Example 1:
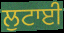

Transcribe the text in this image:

ਲੁਟਾਈ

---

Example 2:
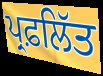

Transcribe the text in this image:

ਪ੍ਰਫ਼ਲਿੱਤ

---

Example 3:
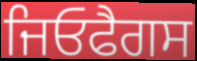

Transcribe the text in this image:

ਜਿਓਫੈਗਸ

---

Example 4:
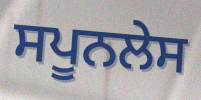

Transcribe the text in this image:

ਸਪੂਨਲੇਸ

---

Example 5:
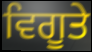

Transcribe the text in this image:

ਵਿਗੂਤੇ